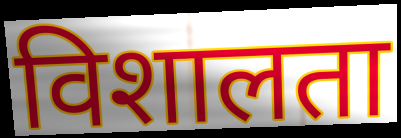
विशालता